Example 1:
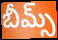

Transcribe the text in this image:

బీమ్స్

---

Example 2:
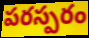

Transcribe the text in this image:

పరస్పరం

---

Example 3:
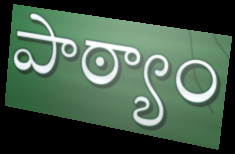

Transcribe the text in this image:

పాఠ్యాం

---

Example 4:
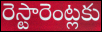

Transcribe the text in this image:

రెస్టారెంట్లకు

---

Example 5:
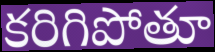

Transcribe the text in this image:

కరిగిపోతూ